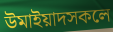
উমাইয়াদসকলে